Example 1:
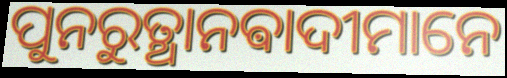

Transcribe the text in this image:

ପୁନରୁତ୍ଥାନଵାଦୀମାନେ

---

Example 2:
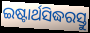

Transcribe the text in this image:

ଇଷ୍ଟାର୍ଥସିଦ୍ଧରସ୍ତୁ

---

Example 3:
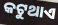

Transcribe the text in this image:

କଟୁଥାଏ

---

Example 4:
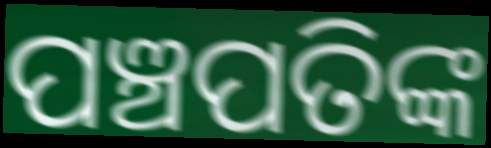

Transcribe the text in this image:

ପଞ୍ଚପତିଙ୍କ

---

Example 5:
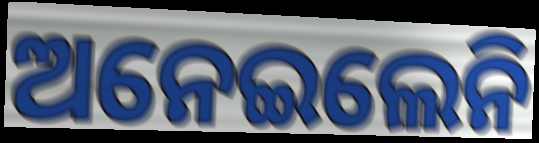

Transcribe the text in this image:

ଅନେଇଲେନି